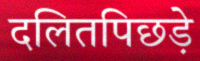
दलितपिछड़े